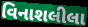
વિનાશલીલા